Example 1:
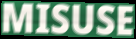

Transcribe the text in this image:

MISUSE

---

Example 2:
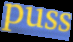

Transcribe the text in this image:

puss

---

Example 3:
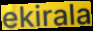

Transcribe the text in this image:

ekirala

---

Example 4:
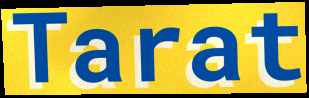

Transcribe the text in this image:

Tarat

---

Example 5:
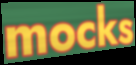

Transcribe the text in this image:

mocks